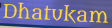
Dhatukam